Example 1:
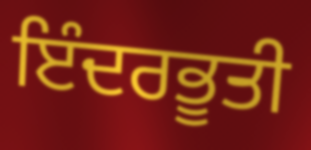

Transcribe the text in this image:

ਇੰਦਰਭੂਤੀ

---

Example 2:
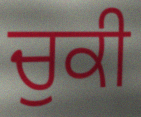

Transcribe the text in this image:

ਚੁਕੀ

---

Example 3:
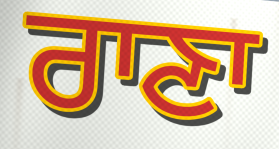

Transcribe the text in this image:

ਰਾਣਾ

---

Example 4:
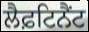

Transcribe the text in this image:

ਲੈਫ਼ਟਿਨੈਂਟ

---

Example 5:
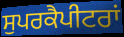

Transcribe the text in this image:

ਸੁਪਰਕੈਪੀਟਰਾਂ